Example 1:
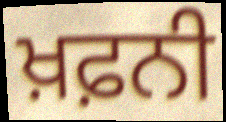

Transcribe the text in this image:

ਖ਼ਫ਼ਨੀ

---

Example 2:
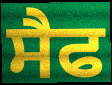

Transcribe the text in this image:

ਸੈਫ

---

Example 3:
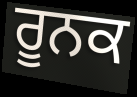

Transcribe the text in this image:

ਰੂਨਕ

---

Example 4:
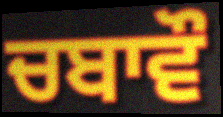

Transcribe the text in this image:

ਚਬਾਵੌ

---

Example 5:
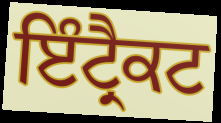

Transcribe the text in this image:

ਇੰਟ੍ਰੈਕਟ